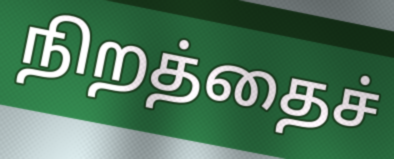
நிறத்தைச்